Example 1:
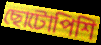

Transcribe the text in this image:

ছোটোপিশি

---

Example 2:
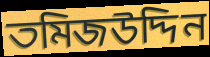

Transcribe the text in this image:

তমিজউদ্দিন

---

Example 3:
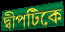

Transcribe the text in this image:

দ্বীপটিকে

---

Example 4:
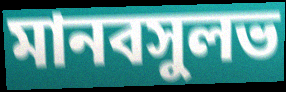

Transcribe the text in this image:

মানবসুলভ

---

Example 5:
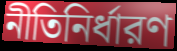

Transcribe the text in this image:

নীতিনির্ধারণ